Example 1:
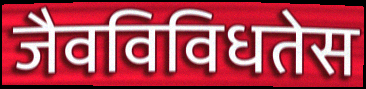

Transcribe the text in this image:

जैवविविधतेस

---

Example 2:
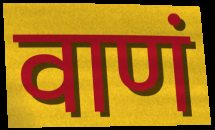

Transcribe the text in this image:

वाणं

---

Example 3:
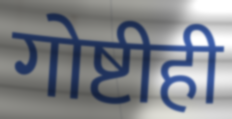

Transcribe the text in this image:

गोष्टीही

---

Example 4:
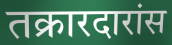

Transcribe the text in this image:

तक्रारदारांस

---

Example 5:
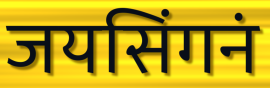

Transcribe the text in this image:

जयसिंगनं